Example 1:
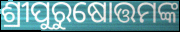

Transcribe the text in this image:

ଶ୍ରୀପୁରୁଷୋତ୍ତମଙ୍କ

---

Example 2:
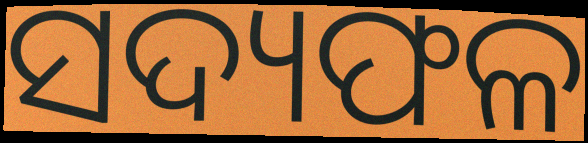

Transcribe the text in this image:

ସଦ୍ୟଫଳ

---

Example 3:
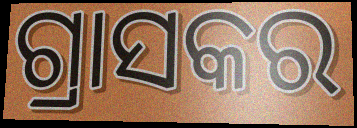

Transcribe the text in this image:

ଗ୍ରାସକର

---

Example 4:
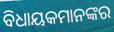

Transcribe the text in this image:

ବିଧାୟକମାନଙ୍କର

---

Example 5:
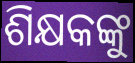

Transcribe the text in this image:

ଶିକ୍ଷକଙ୍କୁ